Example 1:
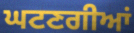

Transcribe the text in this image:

ਘਟਣਗੀਆਂ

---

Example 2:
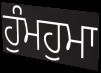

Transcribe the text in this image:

ਹੁੰਮਹੁਮਾ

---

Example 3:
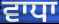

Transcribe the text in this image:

ਵਾਧਾ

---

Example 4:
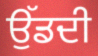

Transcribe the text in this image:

ਉੱਡਦੀ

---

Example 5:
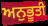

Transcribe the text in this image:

ਅਨੁਭੂਤੀ